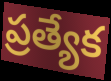
ప్రత్యేక